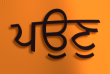
ਪਉਣੁ